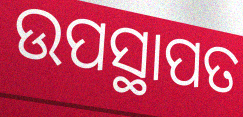
ଉପସ୍ଥାପତ